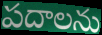
పదాలను